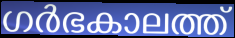
ഗർഭകാലത്ത്